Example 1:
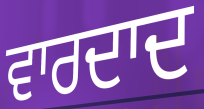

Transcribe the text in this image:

ਵਾਰਦਾਦ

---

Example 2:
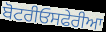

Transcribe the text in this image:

ਬੋਟਰੀਓਸਫੇਰੀਆ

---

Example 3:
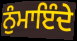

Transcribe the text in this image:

ਨੁੰਮਾਇੰਦੇ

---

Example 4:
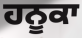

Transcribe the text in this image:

ਹਨੂਕਾ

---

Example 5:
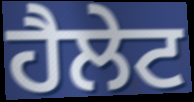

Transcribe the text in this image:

ਹੈਲੇਟ